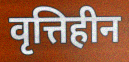
वृत्तिहीन